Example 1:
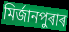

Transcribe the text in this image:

মিৰ্জানপুৰাৰ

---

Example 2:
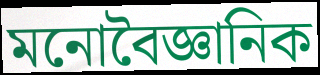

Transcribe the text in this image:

মনোবৈজ্ঞানিক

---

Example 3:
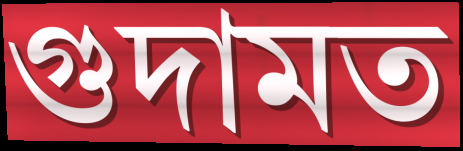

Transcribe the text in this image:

গুদামত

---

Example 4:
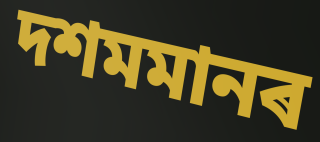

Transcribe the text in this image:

দশমমানৰ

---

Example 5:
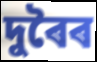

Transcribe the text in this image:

দুৰৈৰ